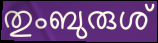
തുംബുരുശ്